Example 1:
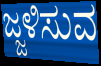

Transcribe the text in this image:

ಜ್ಜಳಿಸುವ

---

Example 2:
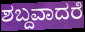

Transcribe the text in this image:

ಶಬ್ದವಾದರೆ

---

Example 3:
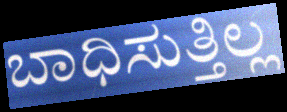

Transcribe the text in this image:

ಬಾಧಿಸುತ್ತಿಲ್ಲ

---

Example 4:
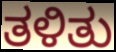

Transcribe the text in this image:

ತಳಿತು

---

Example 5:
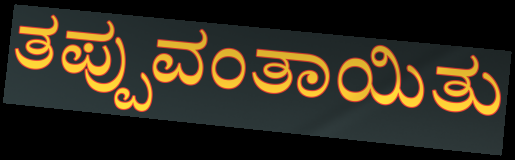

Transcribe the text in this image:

ತಪ್ಪುವಂತಾಯಿತು